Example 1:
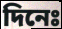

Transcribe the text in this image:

দিনেঃ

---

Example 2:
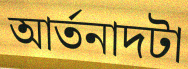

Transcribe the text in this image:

আর্তনাদটা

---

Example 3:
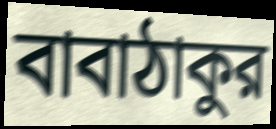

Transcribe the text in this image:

বাবাঠাকুর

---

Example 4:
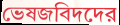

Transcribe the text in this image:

ভেষজবিদদের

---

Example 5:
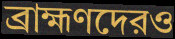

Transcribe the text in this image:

ব্রাহ্মণদেরও